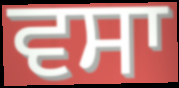
ਵਸਾ